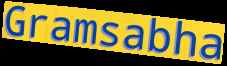
Gramsabha